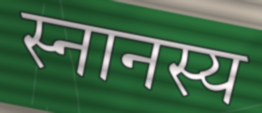
स्नानस्य